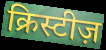
क्रिस्टीज़